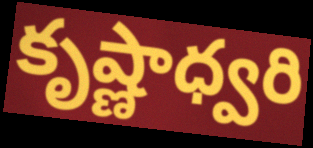
కృష్ణాధ్వరి